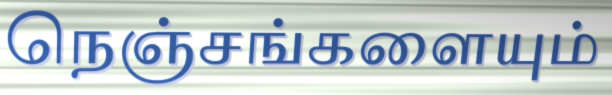
நெஞ்சங்களையும்